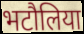
भटौलिया